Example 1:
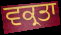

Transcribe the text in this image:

ਵਕ੍ਰਤਾ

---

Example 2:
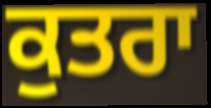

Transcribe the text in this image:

ਕੁਤਰਾ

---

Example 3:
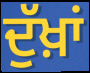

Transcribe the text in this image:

ਦੁੱਖ਼ਾਂ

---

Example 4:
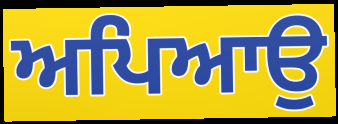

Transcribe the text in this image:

ਅਪਿਆਉ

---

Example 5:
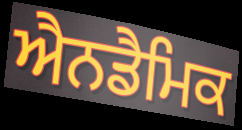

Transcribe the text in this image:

ਐਨਡੈਮਿਕ